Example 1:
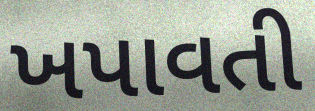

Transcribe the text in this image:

ખપાવતી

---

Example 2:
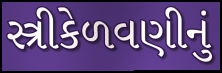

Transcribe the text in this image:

સ્ત્રીકેળવણીનું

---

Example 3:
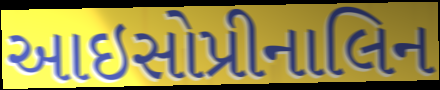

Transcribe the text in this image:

આઇસોપ્રીનાલિન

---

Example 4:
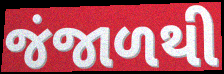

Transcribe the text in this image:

જંજાળથી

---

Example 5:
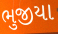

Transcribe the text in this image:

ભુજીયા